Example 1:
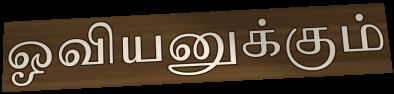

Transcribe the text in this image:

ஓவியனுக்கும்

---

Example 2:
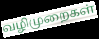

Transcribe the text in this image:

வழிமுறைகள்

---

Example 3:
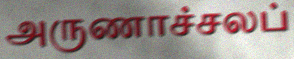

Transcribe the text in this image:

அருணாச்சலப்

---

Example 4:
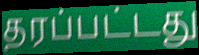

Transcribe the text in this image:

தரப்பட்டது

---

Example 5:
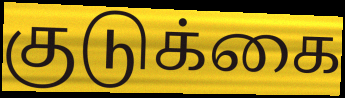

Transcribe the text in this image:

குடுக்கை